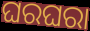
ଘରଘରା